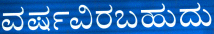
ವರ್ಷವಿರಬಹುದು